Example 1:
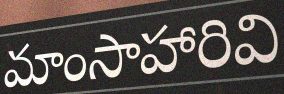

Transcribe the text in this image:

మాంసాహారివి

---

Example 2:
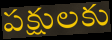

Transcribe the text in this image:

పక్షులకు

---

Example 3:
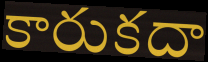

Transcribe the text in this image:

కారుకదా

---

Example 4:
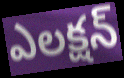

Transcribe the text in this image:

ఎలక్షన్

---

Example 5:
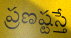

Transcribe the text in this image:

ప్రణష్టస్తే